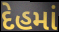
દેહમાં